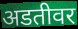
अडतीवर